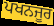
ਪਖਨਜੂਰ